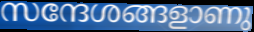
സന്ദേശങ്ങളാണു